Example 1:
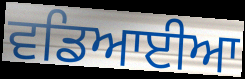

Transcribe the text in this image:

ਵਡਿਆਈਆ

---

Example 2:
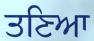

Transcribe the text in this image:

ਤਣਿਆ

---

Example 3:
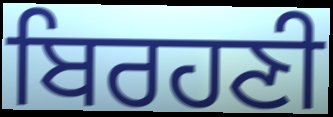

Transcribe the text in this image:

ਬਿਰਹਣੀ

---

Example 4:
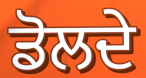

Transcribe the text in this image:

ਡੋਲਦੇ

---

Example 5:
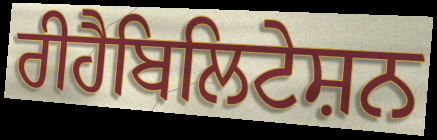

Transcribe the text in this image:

ਰੀਹੈਬਿਲਿਟੇਸ਼ਨ